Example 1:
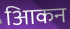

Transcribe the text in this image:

आिकन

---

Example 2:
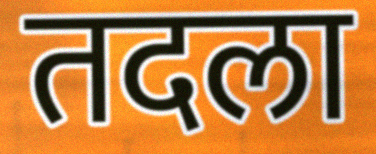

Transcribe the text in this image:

तदला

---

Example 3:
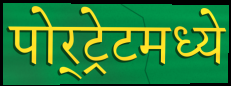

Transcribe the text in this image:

पोर्ट्रेटमध्ये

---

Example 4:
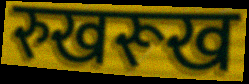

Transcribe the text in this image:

रुखरूख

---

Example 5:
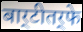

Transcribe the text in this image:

बार्टीतर्फे